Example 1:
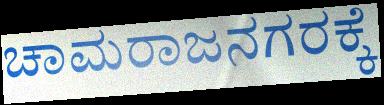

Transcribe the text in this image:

ಚಾಮರಾಜನಗರಕ್ಕೆ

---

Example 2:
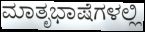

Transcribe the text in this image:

ಮಾತೃಭಾಷೆಗಳಲ್ಲಿ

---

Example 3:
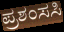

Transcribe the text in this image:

ಪ್ರಶಂಸಸಿ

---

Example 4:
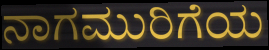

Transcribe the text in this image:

ನಾಗಮುರಿಗೆಯ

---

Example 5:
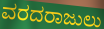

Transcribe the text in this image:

ವರದರಾಜುಲು